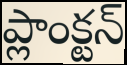
ప్లాంక్టన్